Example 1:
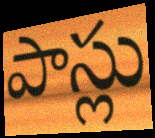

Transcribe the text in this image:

పాస్లు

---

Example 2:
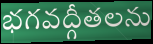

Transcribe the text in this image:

భగవద్గీతలను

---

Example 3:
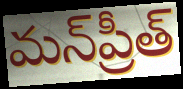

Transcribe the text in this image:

మన్‌ప్రీత్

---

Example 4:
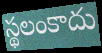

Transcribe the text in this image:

స్థలంకాదు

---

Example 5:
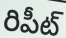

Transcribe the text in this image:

రిపీట్